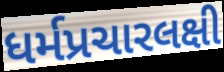
ધર્મપ્રચારલક્ષી